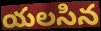
యలసిన